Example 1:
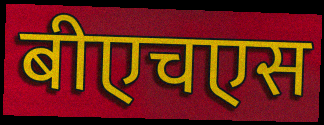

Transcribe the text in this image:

बीएचएस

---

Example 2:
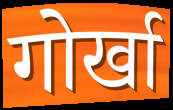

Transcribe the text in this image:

गोर्खा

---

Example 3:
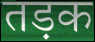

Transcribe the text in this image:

तड़क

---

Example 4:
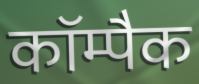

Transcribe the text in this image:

कॉम्पैक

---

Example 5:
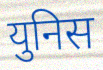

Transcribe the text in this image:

युनिस